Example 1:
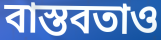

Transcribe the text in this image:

বাস্তবতাও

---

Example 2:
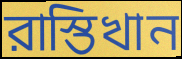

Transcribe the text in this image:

রাস্তিখান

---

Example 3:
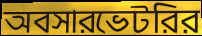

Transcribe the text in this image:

অবসারভেটরির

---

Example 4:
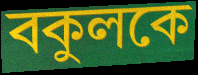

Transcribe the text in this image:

বকুলকে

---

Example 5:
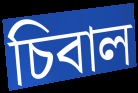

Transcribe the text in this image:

চিবাল